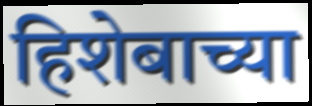
हिशेबाच्या